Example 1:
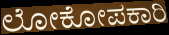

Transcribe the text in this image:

ಲೋಕೋಪಕಾರಿ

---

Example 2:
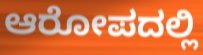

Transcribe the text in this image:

ಆರೋಪದಲ್ಲಿ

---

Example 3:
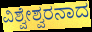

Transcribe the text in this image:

ವಿಶ್ವೇಶ್ವರನಾದ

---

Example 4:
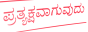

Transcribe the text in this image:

ಪ್ರತ್ಯಕ್ಷವಾಗುವುದು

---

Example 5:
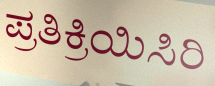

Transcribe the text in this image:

ಪ್ರತಿಕ್ರಿಯಿಸಿರಿ